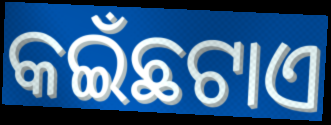
କଇଁଛଟାଏ